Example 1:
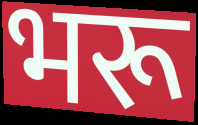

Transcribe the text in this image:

भरू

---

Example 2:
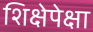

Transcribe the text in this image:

शिक्षेपेक्षा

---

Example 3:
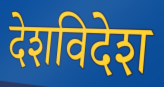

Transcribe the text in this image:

देशविदेश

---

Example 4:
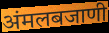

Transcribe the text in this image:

अंमलबजाणी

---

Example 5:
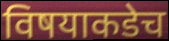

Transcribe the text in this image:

विषयाकडेच